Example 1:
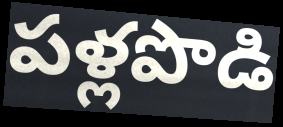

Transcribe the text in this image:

పళ్లపొడి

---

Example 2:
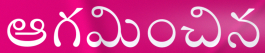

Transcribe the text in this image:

ఆగమించిన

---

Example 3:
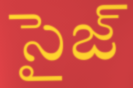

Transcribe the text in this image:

సైజ్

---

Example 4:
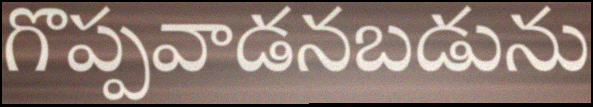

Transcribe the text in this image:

గొప్పవాడనబడును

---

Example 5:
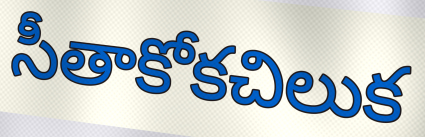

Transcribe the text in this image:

సీతాకోకచిలుక